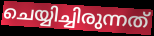
ചെയ്യിച്ചിരുന്നത്